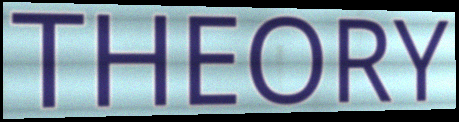
THEORY